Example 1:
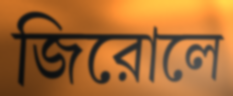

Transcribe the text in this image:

জিরোলে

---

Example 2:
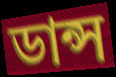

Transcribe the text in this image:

ডান্স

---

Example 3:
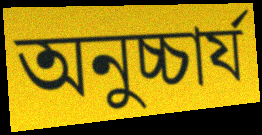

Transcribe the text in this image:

অনুচ্চার্য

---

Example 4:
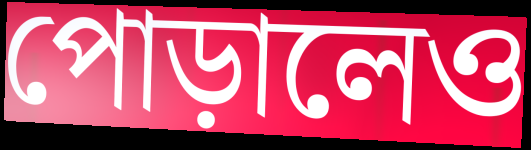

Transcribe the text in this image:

পোড়ালেও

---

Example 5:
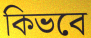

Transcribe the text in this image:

কিভবে